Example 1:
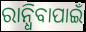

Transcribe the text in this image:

ରାନ୍ଧିବାପାଇଁ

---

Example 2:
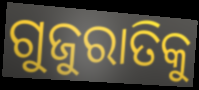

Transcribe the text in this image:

ଗୁଜୁରାତିକୁ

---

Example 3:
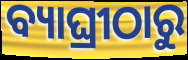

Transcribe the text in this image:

ବ୍ୟାଘ୍ରୀଠାରୁ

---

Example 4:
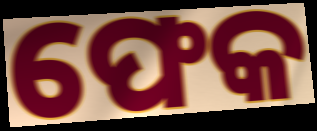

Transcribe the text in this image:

ଫେକ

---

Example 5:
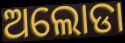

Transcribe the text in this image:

ଅଲୋଡା